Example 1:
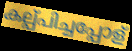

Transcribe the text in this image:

കല്പ്പിച്ചപ്പോള്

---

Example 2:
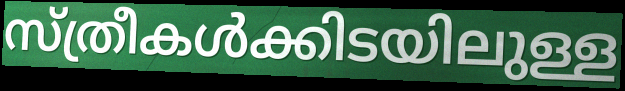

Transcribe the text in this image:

സ്ത്രീകൾക്കിടയിലുള്ള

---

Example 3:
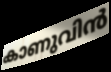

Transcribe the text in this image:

കാണുവിൻ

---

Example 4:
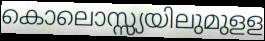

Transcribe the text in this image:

കൊലൊസ്സ്യയിലുമുളള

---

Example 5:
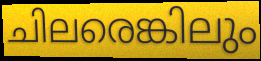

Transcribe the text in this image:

ചിലരെങ്കിലും